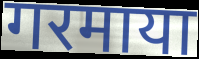
गरमाया